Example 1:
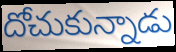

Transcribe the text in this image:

దోచుకున్నాడు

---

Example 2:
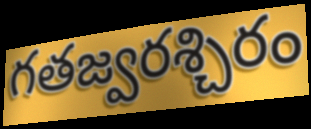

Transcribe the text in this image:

గతజ్వరశ్చిరం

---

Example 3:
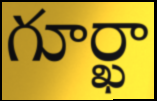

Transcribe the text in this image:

గూర్ఖా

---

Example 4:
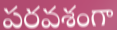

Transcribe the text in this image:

పరవశంగా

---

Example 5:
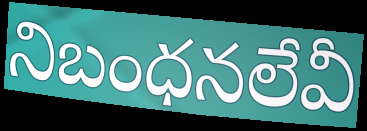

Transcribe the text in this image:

నిబంధనలేవీ